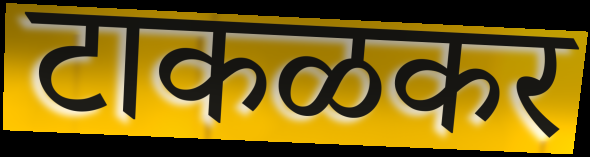
टाकळकर